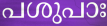
പശുപാഃ